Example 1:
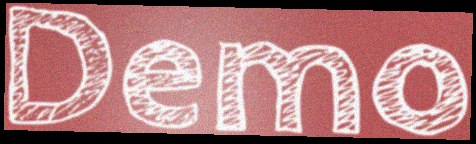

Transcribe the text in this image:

Demo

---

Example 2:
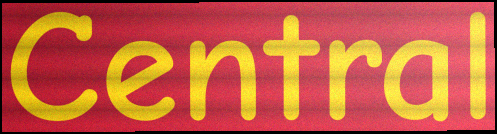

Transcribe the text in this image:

Central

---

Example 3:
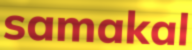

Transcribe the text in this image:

samakal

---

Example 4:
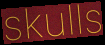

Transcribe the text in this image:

skulls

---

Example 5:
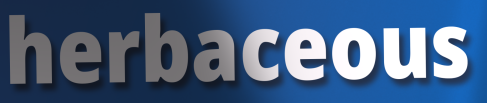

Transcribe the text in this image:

herbaceous